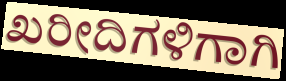
ಖರೀದಿಗಳಿಗಾಗಿ